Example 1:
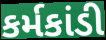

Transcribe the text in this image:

કર્મકાંડી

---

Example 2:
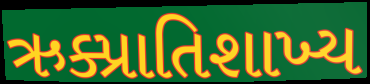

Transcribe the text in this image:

ઋક્પ્રાતિશાખ્ય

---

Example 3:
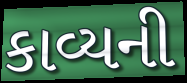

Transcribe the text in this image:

કાવ્યની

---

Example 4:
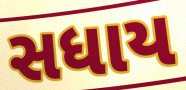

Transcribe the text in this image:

સધાય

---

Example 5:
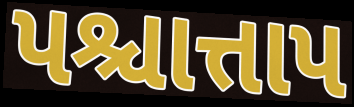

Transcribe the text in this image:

પશ્ચાત્તાપ